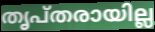
തൃപ്തരായില്ല